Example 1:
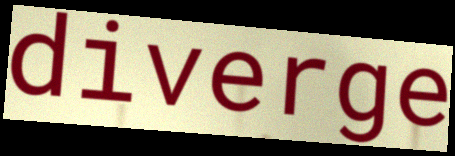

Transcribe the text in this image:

diverge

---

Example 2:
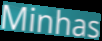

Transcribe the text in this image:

Minhas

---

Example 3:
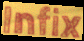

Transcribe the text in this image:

Infix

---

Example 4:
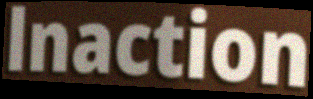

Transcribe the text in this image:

lnaction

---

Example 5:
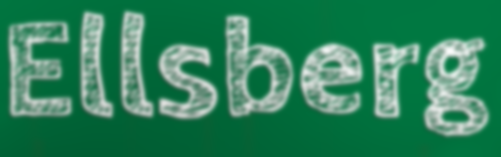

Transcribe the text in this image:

Ellsberg